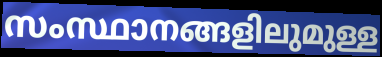
സംസ്ഥാനങ്ങളിലുമുള്ള